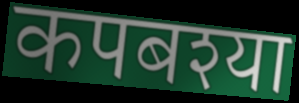
कपबश्या